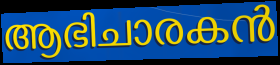
ആഭിചാരകൻ